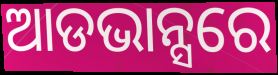
ଆଡଭାନ୍ସରେ